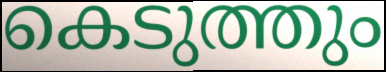
കെടുത്തും